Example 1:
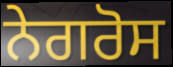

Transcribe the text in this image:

ਨੇਗਰੋਸ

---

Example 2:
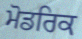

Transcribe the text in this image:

ਮੋਡਰਿਕ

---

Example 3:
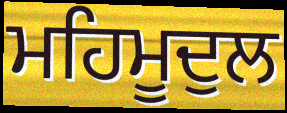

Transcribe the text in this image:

ਮਹਿਮੂਦੁਲ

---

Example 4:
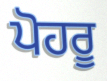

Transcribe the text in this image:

ਪੋਹਰੂ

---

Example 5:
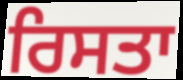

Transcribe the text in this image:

ਰਿਸਤਾ